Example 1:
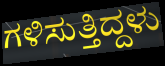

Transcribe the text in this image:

ಗಳಿಸುತ್ತಿದ್ದಳು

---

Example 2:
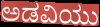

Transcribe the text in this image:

ಅಡವಿಯು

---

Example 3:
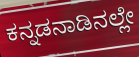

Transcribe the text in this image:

ಕನ್ನಡನಾಡಿನಲ್ಲೇ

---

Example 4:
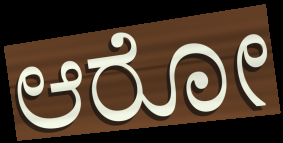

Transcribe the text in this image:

ಆರೋ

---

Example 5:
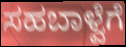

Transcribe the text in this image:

ಸಹಬಾಳ್ವೆಗೆ